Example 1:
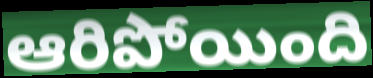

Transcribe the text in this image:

ఆరిపోయింది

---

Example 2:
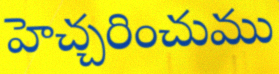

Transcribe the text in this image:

హెచ్చరించుము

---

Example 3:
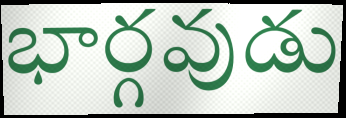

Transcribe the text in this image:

భార్గవుడు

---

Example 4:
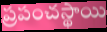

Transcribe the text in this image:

ప్రపంచస్థాయి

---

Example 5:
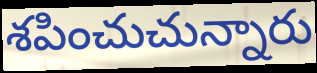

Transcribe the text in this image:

శపించుచున్నారు